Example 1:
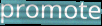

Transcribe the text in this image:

promote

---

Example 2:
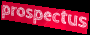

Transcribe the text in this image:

prospectus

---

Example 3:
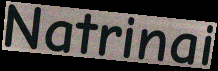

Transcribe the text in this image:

Natrinai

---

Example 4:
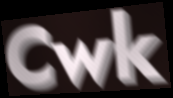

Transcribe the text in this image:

Cwk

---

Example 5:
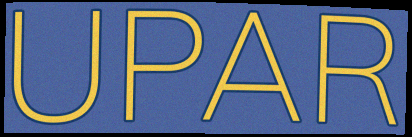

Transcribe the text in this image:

UPAR